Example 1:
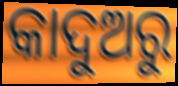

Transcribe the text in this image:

କାଦୁଅରୁ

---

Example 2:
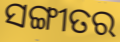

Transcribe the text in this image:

ସଙ୍ଗୀତର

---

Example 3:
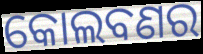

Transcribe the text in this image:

କୋଲବଣର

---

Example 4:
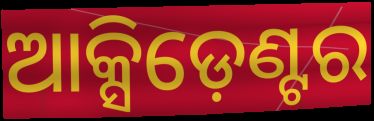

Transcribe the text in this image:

ଆକ୍ସିଡ଼େଣ୍ଟର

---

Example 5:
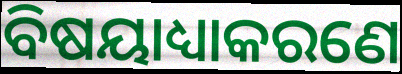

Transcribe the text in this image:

ବିଷୟାଧ୍ୟାକରଣେ